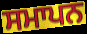
ਸਮਾਪਨ